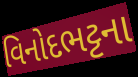
વિનોદભટ્ટના